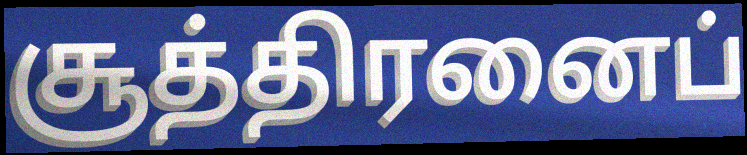
சூத்திரனைப்